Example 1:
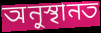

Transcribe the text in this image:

অনুস্থানত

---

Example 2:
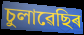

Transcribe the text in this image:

চুলাৱেছিৰ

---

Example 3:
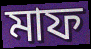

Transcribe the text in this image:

মাফ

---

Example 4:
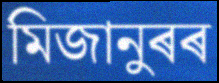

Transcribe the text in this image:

মিজানুৰৰ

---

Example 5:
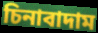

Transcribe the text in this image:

চিনাবাদাম